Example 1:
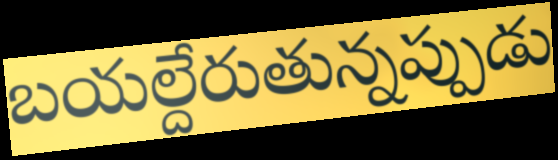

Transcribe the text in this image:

బయల్దేరుతున్నప్పుడు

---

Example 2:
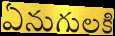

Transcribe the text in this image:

ఏనుగులకి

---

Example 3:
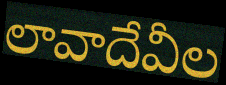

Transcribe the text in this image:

లావాదేవీల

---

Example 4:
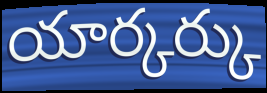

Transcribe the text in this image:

యార్కర్కు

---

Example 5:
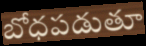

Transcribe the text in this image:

బోధపడుతూ